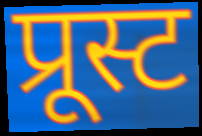
प्रूस्ट